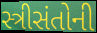
સ્ત્રીસંતોની